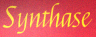
Synthase